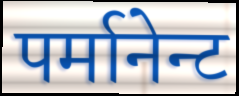
पर्मानेन्ट